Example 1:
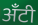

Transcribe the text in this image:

अँटी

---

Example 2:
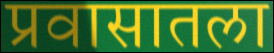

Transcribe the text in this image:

प्रवासातला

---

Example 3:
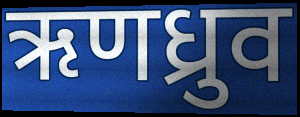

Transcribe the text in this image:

ॠणध्रुव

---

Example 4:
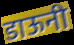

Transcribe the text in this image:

डाऊनी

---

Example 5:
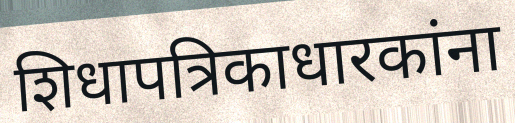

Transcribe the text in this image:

शिधापत्रिकाधारकांना